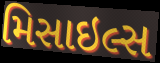
મિસાઇલ્સ